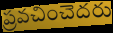
ప్రవచించెదరు